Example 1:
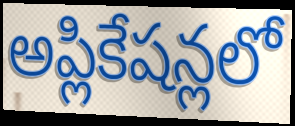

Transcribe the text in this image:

అప్లికేషన్లలో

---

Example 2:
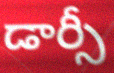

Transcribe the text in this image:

డార్సీ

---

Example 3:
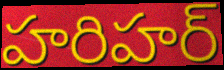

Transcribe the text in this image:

హరిహర్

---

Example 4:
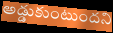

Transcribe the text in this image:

అడ్డుకుంటుందని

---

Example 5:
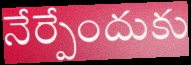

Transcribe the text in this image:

నేర్పేందుకు